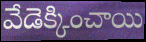
వేడెక్కించాయి